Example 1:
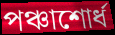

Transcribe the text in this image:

পঞ্চাশোর্ধ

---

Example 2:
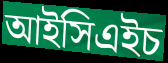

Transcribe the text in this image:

আইসিএইচ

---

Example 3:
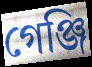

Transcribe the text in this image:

গেঞ্জি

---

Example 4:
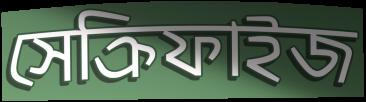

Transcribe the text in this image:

সেক্রিফাইজ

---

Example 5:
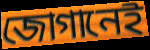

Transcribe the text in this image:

জোগানেই